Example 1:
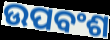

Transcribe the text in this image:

ଉପବଂଶ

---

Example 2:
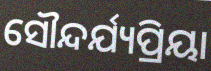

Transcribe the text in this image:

ସୌନ୍ଦର୍ଯ୍ୟପ୍ରିୟା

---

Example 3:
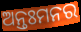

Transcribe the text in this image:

ଅନ୍ତଃମନର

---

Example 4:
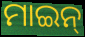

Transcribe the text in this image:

ମାଇନ୍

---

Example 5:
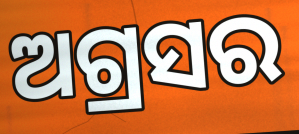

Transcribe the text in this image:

ଅଗ୍ରସର